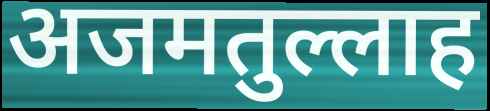
अजमतुल्लाह